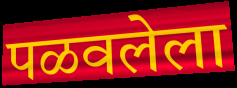
पळवलेला